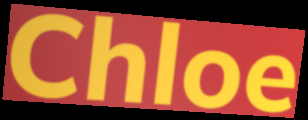
Chloe